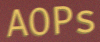
AOPs